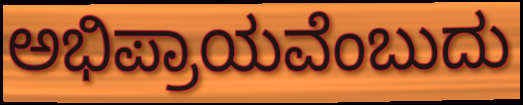
ಅಭಿಪ್ರಾಯವೆಂಬುದು